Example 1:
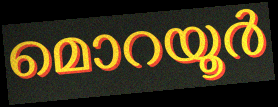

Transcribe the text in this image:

മൊറയൂർ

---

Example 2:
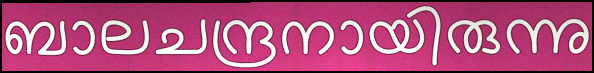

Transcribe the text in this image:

ബാലചന്ദ്രനായിരുന്നു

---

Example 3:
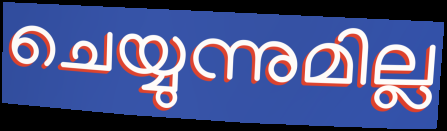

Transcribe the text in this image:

ചെയ്യുന്നുമില്ല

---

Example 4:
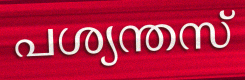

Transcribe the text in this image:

പശ്യന്തസ്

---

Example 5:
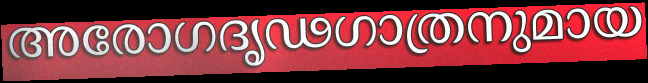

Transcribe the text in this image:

അരോഗദൃഢഗാത്രനുമായ